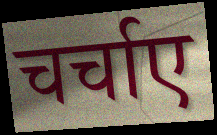
चर्चाए